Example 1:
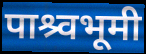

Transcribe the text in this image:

पाश्र्वभूमी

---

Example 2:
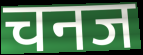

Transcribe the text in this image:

चनज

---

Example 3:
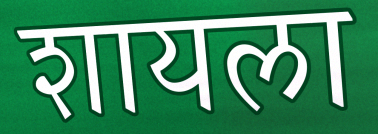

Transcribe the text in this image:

शायला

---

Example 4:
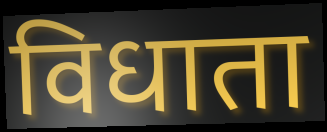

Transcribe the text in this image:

विधाता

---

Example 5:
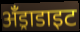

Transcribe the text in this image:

अँड्राडाइट